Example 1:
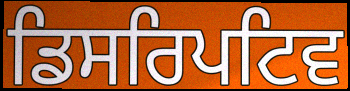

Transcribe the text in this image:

ਡਿਸਰਿਪਟਿਵ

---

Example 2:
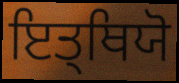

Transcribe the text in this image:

ਇਤ੍ਥਿਯੋ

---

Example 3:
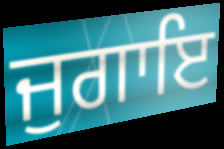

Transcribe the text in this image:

ਜੁਗਾਇ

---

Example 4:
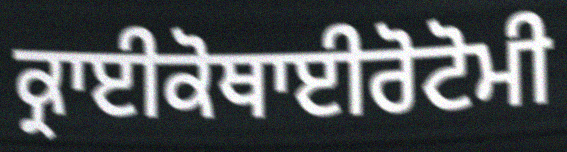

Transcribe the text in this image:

ਕ੍ਰਾਈਕੋਥਾਈਰੋਟੋਮੀ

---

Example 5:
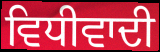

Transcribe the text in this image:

ਵਿਧੀਵਾਦੀ